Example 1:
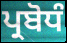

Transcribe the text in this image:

ਪ੍ਰਬੋਧੰ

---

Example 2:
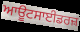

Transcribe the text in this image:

ਆਊਟਸਾਈਡਰਜ਼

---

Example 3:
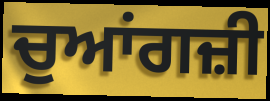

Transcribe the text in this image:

ਚੁਆਂਗਜ਼ੀ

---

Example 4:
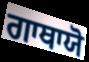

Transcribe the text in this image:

ਗਾਥਾਯੋ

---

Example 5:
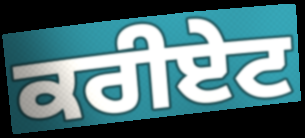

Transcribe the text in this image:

ਕਰੀਏਟ